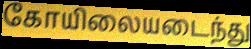
கோயிலையடைந்து